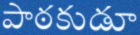
పాఠకుడూ